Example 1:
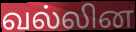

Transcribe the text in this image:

வல்லின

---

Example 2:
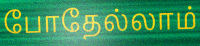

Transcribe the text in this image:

போதேல்லாம்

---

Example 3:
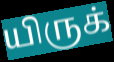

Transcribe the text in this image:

யிருக்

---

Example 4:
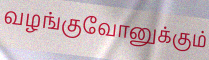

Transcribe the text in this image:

வழங்குவோனுக்கும்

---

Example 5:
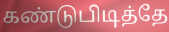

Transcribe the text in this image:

கண்டுபிடித்தே